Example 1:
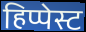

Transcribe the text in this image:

हिप्पेस्ट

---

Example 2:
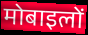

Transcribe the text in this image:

मोबाइलों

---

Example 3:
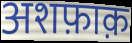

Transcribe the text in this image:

अशफ़ाक़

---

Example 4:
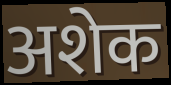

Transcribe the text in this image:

अशेक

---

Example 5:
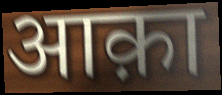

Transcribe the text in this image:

आक़ा